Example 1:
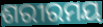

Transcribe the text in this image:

ଶରୀରମୟ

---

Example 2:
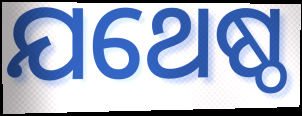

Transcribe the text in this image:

ଯଥେଷ୍ଠ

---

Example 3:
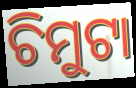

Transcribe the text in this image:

ଚିମୁଟା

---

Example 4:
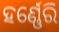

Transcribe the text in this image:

ହର୍ଣ୍ଣେରି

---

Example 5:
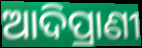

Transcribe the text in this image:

ଆଦିପ୍ରାଣୀ